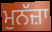
ਮੁਨੱਜ਼ਾ